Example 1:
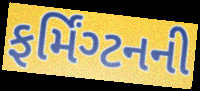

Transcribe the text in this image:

ફર્મિંગ્ટનની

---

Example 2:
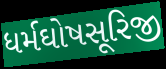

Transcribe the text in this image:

ધર્મઘોષસૂરિજી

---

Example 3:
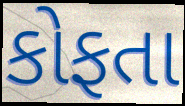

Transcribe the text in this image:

કોફતા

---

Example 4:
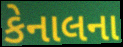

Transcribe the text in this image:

કેનાલના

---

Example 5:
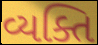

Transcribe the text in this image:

વ્યક્તિ